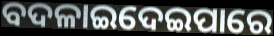
ବଦଳାଇଦେଇପାରେ